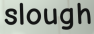
slough